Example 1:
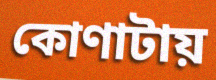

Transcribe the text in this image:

কোণাটায়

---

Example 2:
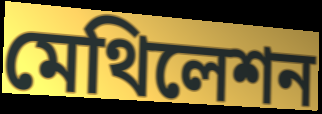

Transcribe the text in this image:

মেথিলেশন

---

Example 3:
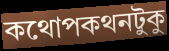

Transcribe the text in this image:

কথোপকথনটুকু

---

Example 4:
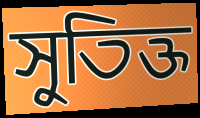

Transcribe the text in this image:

সুতিক্ত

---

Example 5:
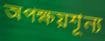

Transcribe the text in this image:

অপক্ষয়শূন্য